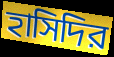
হাসিদির